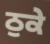
ਠੁਕੇ